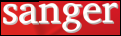
sanger